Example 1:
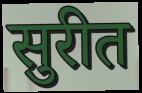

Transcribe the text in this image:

सुरीत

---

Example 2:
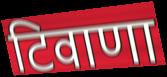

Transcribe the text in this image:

टिवाणा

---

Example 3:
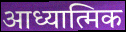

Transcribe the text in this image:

आध्यात्मिक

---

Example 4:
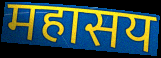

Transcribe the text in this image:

महासय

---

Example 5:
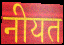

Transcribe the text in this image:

नीयत